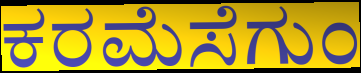
ಕರಮೆಸೆಗುಂ